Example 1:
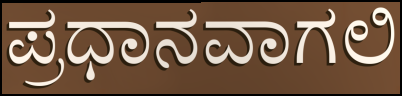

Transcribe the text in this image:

ಪ್ರಧಾನವಾಗಲಿ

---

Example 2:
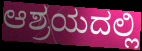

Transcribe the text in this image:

ಆಶ್ರಯದಲ್ಲಿ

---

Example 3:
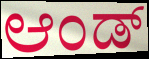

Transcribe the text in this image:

ಆಂಡ್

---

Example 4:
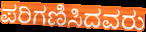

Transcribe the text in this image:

ಪರಿಗಣಿಸಿದವರು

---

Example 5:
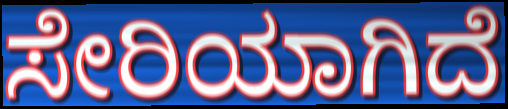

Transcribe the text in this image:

ಸೇರಿಯಾಗಿದೆ